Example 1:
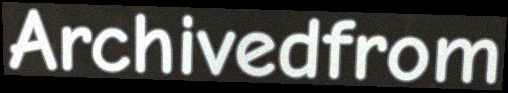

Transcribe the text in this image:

Archivedfrom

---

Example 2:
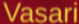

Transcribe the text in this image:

Vasari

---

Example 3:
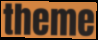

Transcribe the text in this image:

theme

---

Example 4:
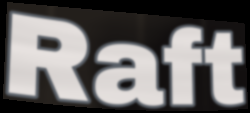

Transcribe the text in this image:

Raft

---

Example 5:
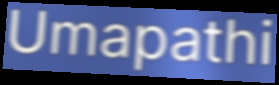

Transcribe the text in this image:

Umapathi